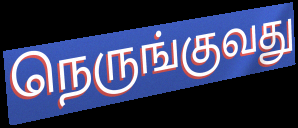
நெருங்குவது